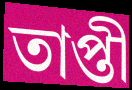
তাপ্তী